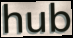
hub